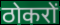
ठोकरों